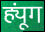
ह्यूंग